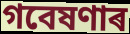
গবেষণাৰ